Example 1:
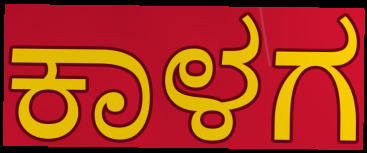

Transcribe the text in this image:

ಕಾಳಗ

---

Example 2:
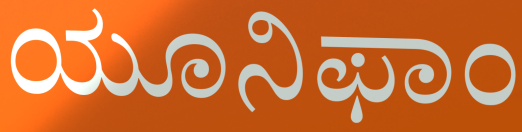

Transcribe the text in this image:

ಯೂನಿಫಾಂ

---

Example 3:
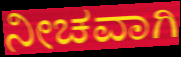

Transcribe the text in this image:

ನೀಚವಾಗಿ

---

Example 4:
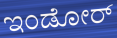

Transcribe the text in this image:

ಇಂಡೋರ್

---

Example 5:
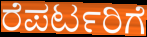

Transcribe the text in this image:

ರೆಪರ್ಟರಿಗೆ